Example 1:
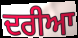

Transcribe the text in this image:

ਦਰੀਆ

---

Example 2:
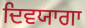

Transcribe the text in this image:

ਦਿਵਯਾਗਾ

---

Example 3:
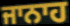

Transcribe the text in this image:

ਜਾਨਾਹ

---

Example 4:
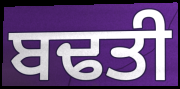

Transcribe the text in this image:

ਬਢਤੀ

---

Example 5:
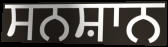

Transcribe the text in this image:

ਸਨਸ਼ਾਨ